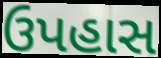
ઉપહાસ